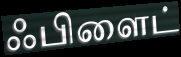
ஃபிளைட்